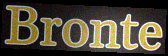
Bronte